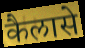
कैलासे